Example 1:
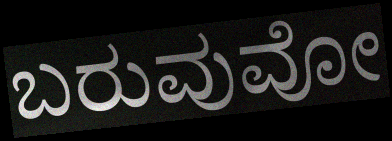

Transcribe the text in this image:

ಬರುವುವೋ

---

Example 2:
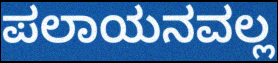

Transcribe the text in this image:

ಪಲಾಯನವಲ್ಲ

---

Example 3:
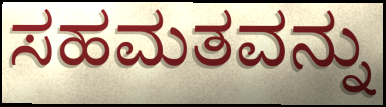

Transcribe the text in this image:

ಸಹಮತವನ್ನು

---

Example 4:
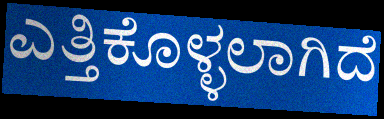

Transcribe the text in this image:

ಎತ್ತಿಕೊಳ್ಳಲಾಗಿದೆ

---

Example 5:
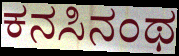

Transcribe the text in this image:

ಕನಸಿನಂಥ